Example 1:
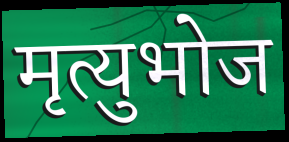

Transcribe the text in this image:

मृत्युभोज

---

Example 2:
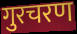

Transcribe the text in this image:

गुरचरण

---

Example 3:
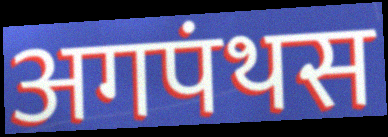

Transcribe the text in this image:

अगपंथस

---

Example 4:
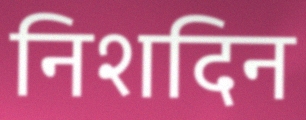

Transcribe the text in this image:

निशदिन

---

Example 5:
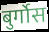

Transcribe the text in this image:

बुर्गोस